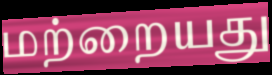
மற்றையது